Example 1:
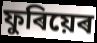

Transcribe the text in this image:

ফুৰিয়েৰ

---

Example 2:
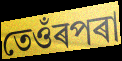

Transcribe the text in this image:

তেওঁৰপৰা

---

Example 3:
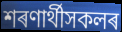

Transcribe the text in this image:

শৰণাৰ্থীসকলৰ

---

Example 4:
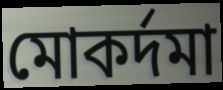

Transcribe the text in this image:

মোকৰ্দমা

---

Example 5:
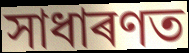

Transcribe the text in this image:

সাধাৰণত